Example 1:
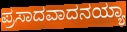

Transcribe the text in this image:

ಪ್ರಸಾದವಾದನಯ್ಯಾ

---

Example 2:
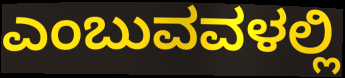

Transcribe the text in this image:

ಎಂಬುವವಳಲ್ಲಿ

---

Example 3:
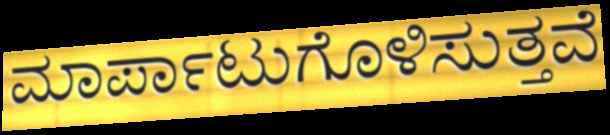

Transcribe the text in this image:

ಮಾರ್ಪಾಟುಗೊಳಿಸುತ್ತವೆ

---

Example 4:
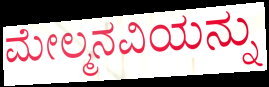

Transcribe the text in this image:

ಮೇಲ್ಮನವಿಯನ್ನು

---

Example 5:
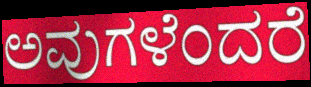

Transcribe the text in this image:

ಅವುಗಳೆಂದರೆ